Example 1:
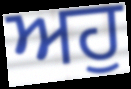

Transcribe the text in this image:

ਅਹੁ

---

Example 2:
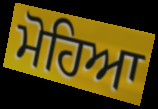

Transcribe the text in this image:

ਮੋਹਿਆ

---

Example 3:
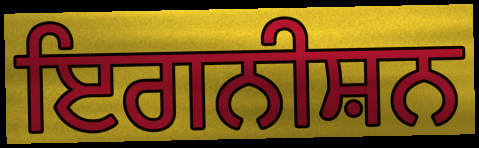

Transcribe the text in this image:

ਇਗਨੀਸ਼ਨ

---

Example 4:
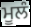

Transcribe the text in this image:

ਮੂਲੰ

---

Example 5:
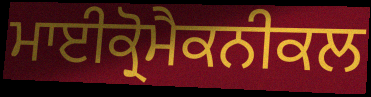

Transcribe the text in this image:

ਮਾਈਕ੍ਰੋਮੈਕਨੀਕਲ